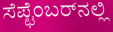
ಸೆಪ್ಟೆಂಬರ್‌ನಲ್ಲಿ